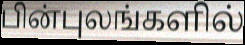
பின்புலங்களில்